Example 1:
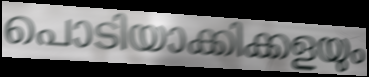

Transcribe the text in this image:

പൊടിയാക്കിക്കളയും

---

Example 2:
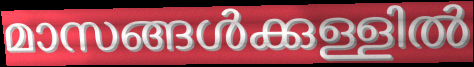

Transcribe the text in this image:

മാസങ്ങൾക്കുള്ളിൽ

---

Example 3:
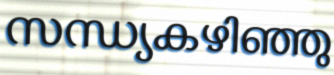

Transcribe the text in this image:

സന്ധ്യകഴിഞ്ഞു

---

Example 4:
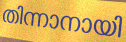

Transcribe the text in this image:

തിന്നാനായി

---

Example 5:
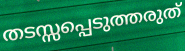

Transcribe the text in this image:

തടസ്സപ്പെടുത്തരുത്